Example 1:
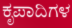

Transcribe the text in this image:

ಕೃಪಾದಿಗಳ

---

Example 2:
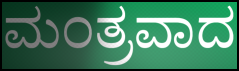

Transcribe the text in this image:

ಮಂತ್ರವಾದ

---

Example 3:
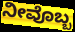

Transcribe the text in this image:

ನೀವೊಬ್ಬ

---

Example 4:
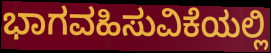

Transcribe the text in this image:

ಭಾಗವಹಿಸುವಿಕೆಯಲ್ಲಿ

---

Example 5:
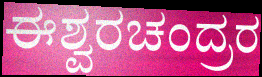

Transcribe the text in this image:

ಈಶ್ವರಚಂದ್ರರ